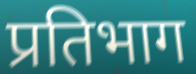
प्रतिभाग